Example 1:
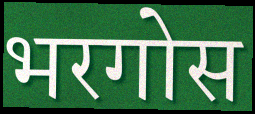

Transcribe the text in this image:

भरगोस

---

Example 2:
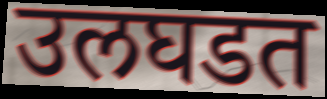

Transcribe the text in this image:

उलघडत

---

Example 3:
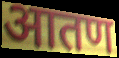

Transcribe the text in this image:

आतण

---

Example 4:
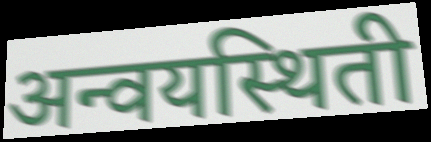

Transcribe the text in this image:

अन्वयस्थिती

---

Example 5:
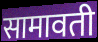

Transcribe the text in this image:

सामावती